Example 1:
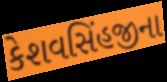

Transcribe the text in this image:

કેશવસિંહજીના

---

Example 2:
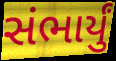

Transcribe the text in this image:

સંભાર્યું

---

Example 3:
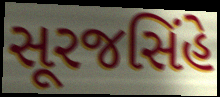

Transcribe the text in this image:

સૂરજસિંહે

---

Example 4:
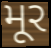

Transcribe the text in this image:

મૂર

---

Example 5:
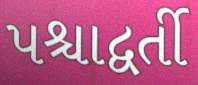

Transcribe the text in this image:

પશ્ચાદ્વર્તી